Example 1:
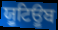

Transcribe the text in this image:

ਯੂਟਿਊਬ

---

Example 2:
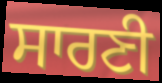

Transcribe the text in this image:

ਸਾਰਣੀ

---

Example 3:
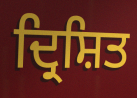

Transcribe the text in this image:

ਦ੍ਰਿਸ਼ਿਤ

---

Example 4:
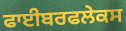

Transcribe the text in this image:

ਫਾਈਬਰਫਲੇਕਸ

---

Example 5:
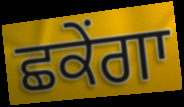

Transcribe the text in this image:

ਛਕੇਂਗਾ